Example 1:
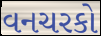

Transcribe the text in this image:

વનચરકો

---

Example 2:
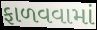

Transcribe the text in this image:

ફાળવવામાં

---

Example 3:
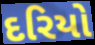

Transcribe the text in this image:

દરિયો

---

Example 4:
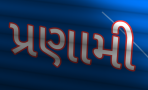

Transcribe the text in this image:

પ્રણામી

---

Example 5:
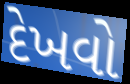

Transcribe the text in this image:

દેખવો